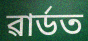
ৱাৰ্ডত